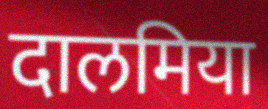
दालमिया